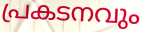
പ്രകടനവും